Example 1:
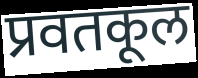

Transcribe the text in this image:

प्रवतकूल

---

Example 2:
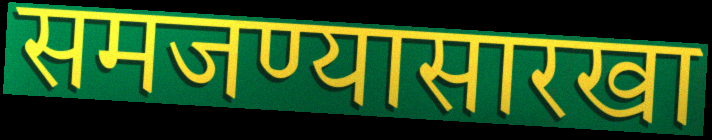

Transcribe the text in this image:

समजण्यासारखा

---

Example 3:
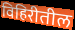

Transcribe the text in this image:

विहिरीतील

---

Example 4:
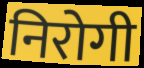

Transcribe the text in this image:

निरोगी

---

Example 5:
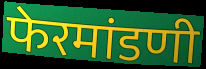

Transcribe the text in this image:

फेरमांडणी